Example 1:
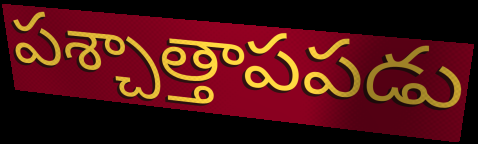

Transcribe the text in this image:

పశ్చాత్తాపపడు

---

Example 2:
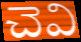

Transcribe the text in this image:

చెవి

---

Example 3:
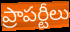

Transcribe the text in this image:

ప్రాపర్టీలు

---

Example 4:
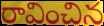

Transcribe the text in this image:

రావించిన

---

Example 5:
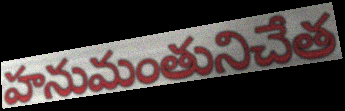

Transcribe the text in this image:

హనుమంతునిచేత